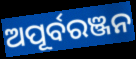
ଅପୂର୍ବରଞ୍ଜନ